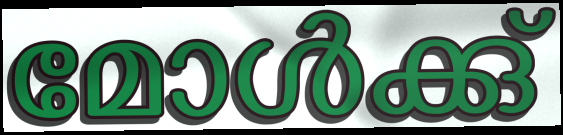
മോൾക്കു്